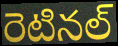
రెటినల్